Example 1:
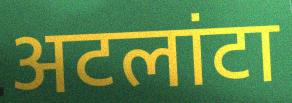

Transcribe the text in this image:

अटलांटा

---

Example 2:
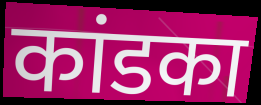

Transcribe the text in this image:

कांडका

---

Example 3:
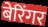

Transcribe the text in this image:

बेरिंगर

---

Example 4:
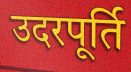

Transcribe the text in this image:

उदरपूर्ति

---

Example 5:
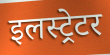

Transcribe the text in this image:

इलस्ट्रेटर